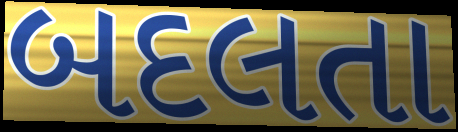
બદલતા